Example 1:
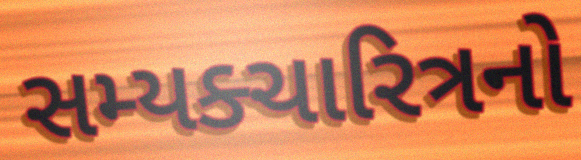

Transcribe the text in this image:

સમ્યક્ચારિત્રનો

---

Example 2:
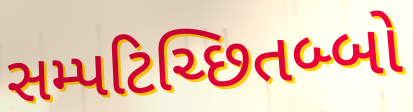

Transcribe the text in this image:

સમ્પટિચ્છિતબ્બો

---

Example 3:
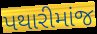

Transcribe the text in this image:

પથારીમાંજ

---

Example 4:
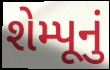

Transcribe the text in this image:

શેમ્પૂનું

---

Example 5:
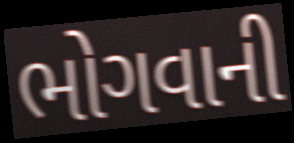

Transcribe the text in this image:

ભોગવાની